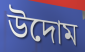
উদোম